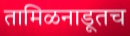
तामिळनाडूतच